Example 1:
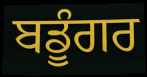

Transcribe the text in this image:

ਬਡੂੰਗਰ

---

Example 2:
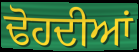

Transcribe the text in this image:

ਢੋਹਦੀਆਂ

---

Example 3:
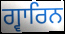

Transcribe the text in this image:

ਗ੍ਵਾਰਿਨ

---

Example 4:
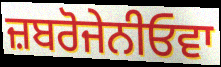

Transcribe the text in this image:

ਜ਼ਬਰੋਜੇਨੀਓਵਾ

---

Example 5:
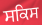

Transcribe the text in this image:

ਸਕਿਸ